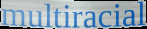
multiracial